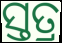
ସ୍ତତ୍ର